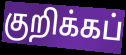
குறிக்கப்